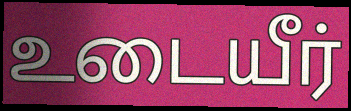
உடையீர்